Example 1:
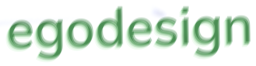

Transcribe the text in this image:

egodesign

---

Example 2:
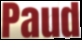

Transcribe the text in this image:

Paud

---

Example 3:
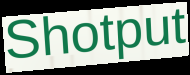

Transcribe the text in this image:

Shotput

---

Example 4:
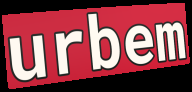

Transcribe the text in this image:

urbem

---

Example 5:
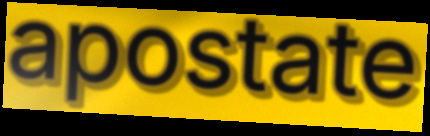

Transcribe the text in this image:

apostate